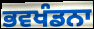
ਭਵਖੰਡਨਾ